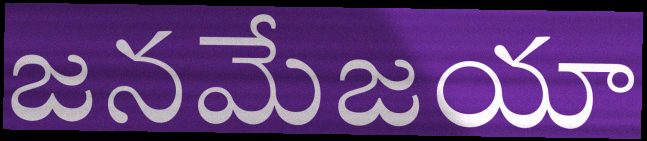
జనమేజయా